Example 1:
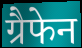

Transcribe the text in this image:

ग्रैफेन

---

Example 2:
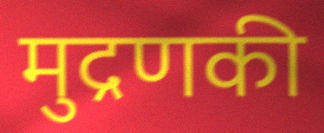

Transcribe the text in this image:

मुद्रणकी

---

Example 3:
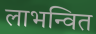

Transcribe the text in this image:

लाभन्वित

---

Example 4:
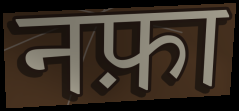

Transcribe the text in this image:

नफ़ा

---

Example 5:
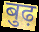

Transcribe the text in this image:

बुढ़